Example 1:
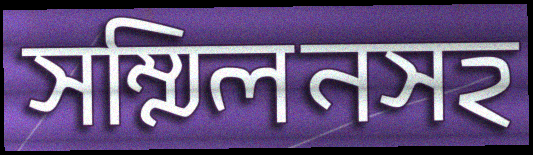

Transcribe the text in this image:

সম্মিলনসহ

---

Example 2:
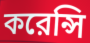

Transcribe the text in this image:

করেন্সি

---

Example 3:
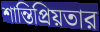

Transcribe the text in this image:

শান্তিপ্রিয়তার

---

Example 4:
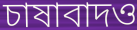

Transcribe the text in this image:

চাষাবাদও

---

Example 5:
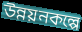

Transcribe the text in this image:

উন্নয়নকল্পে